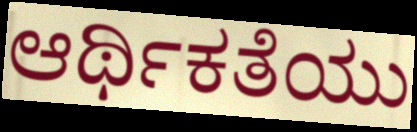
ಆರ್ಥಿಕತೆಯು